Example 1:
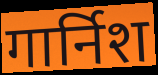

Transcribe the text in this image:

गार्निश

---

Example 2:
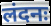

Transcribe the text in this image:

लंदनः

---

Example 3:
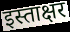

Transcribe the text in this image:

इस्ताक्षर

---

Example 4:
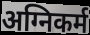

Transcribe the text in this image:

अग्निकर्म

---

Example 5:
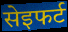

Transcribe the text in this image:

सेइफर्ट